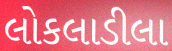
લોકલાડીલા